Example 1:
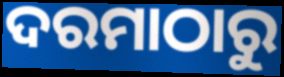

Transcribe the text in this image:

ଦରମାଠାରୁ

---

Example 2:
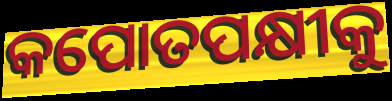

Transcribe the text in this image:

କପୋତପକ୍ଷୀକୁ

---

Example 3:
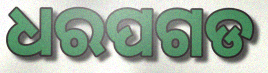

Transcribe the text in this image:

ଧରପଗଡ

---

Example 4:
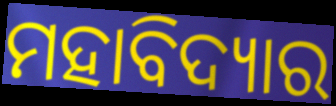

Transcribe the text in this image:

ମହାବିଦ୍ୟାର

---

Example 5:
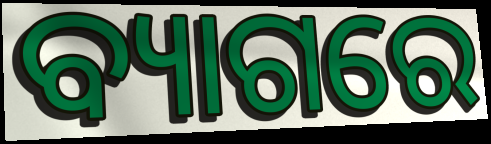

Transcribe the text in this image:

ବ୍ୟାଗରେ